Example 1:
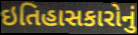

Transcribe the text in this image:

ઇતિહાસકારોનું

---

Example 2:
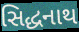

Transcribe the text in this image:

સિદ્ધનાથ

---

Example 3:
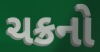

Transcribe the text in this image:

ચક્રનો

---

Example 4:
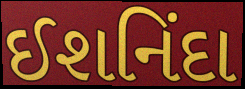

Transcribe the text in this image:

ઈશનિંદા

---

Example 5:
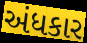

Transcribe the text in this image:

અંધકાર